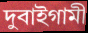
দুবাইগামী